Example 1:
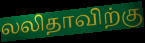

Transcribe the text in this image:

லலிதாவிற்கு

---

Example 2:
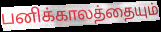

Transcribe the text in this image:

பனிக்காலத்தையும்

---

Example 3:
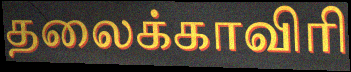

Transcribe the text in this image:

தலைக்காவிரி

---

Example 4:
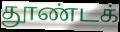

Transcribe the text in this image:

தூண்டக்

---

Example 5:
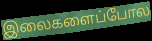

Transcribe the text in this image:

இலைகளைப்போல